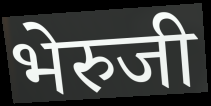
भेरुजी